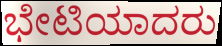
ಭೇಟಿಯಾದರು